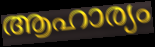
ആഹാര്യം